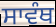
ਸਾਵੰਥ